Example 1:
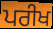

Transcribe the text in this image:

ਪਰੀਖ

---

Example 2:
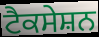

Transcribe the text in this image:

ਟੈਕਸੇਸ਼ਨ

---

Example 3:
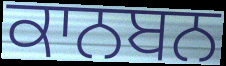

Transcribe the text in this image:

ਕਾਨਬਨ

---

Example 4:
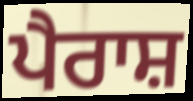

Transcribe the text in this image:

ਪੈਰਾਸ਼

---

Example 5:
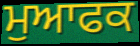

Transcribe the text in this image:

ਮੁਆਫਕ